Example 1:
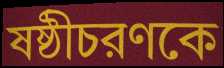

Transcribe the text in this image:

ষষ্ঠীচরণকে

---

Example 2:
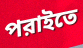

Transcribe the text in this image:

পরাইতে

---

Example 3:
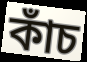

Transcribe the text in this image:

কাঁচ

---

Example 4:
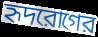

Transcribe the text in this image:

হৃদরোগের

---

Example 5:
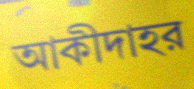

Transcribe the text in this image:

আকীদাহর